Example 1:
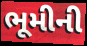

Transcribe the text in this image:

ભૂમીની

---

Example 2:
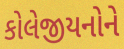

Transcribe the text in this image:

કોલેજીયનોને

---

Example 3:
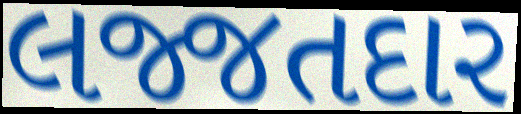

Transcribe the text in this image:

લજ્જતદાર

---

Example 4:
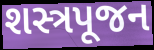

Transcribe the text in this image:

શસ્ત્રપૂજન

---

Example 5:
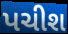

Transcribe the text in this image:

પચીશ